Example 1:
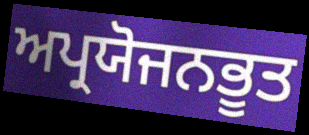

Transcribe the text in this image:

ਅਪ੍ਰਯੋਜਨਭੂਤ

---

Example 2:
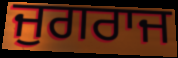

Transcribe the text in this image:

ਜੁਗਰਾਜ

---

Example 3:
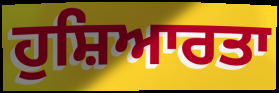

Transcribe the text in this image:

ਹੁਸ਼ਿਆਰਤਾ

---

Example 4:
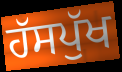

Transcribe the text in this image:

ਹੱਸਪੁੱਖ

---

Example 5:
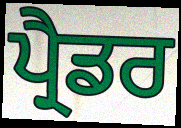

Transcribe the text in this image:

ਪ੍ਰੈਡਰ